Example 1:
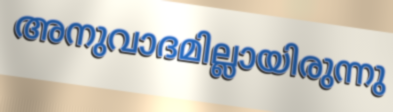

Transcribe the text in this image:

അനുവാദമില്ലായിരുന്നു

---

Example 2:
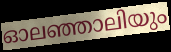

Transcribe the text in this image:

ഓലഞ്ഞാലിയും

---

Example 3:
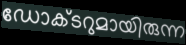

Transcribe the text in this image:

ഡോക്ടറുമായിരുന്ന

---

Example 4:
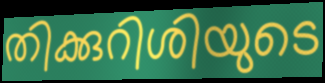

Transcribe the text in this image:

തിക്കുറിശിയുടെ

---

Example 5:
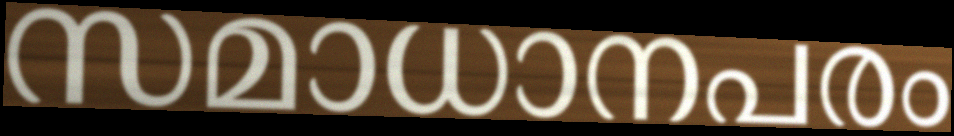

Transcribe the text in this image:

സമാധാനപരം